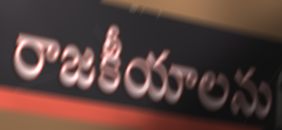
రాజకీయాలను